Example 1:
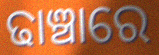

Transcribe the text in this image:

ଢାଞ୍ଚାରେ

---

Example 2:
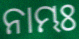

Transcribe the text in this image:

ନାମ୍ଭଃ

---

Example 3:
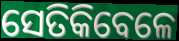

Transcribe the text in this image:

ସେତିକିବେଳେ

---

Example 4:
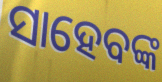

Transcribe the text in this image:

ସାହେବଙ୍କ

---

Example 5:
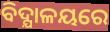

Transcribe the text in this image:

ବିଦ୍ଯାଳୟରେ